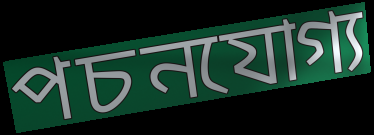
পচনযোগ্য